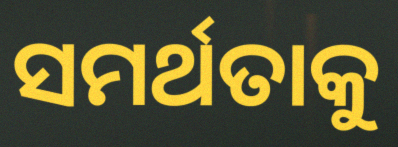
ସମର୍ଥତାକୁ